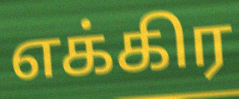
எக்கிர